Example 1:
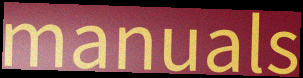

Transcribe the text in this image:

manuals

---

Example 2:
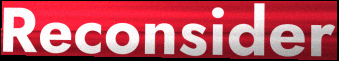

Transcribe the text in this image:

Reconsider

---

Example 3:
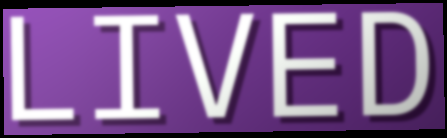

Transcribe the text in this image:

LIVED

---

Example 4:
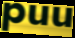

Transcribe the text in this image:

puu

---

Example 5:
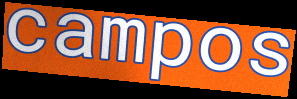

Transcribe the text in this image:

campos